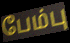
பேம்பு